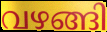
വഴങ്ങി